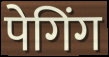
पेगिंग